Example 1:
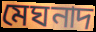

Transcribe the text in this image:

মেঘনাদ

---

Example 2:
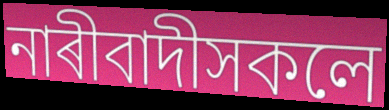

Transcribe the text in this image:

নাৰীবাদীসকলে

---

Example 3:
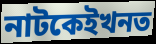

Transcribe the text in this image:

নাটকেইখনত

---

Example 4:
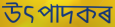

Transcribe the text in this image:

উৎপাদকৰ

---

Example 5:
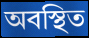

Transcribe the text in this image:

অবস্থিত